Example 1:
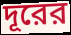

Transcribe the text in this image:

দূরের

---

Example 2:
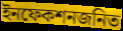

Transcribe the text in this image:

ইনফেকশনজনিত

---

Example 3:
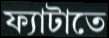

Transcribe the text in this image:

ফ্যাটাতে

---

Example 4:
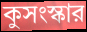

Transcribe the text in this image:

কুসংস্কার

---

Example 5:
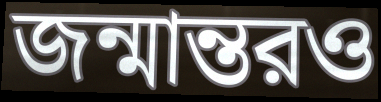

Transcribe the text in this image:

জন্মান্তরও